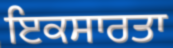
ਇਕਸਾਰਤਾ